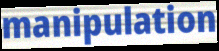
manipulation